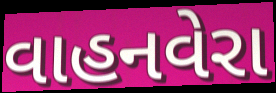
વાહનવેરા